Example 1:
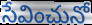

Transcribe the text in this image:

సేవించునో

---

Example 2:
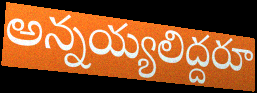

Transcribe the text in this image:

అన్నయ్యలిద్దరూ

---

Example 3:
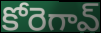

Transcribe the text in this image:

కోరెగావ్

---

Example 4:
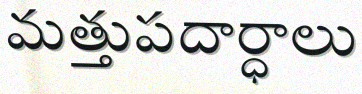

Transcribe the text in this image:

మత్తుపదార్ధాలు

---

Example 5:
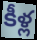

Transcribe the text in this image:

కీళ్ల